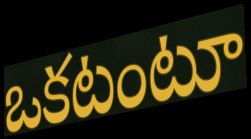
ఒకటంటూ